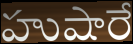
హుషారే